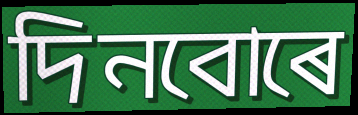
দিনবোৰে